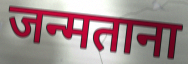
जन्मताना